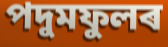
পদুমফুলৰ